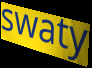
swaty